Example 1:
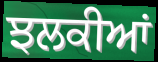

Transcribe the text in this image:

ਝਲਕੀਆਂ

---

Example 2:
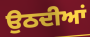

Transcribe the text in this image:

ਉਠਦੀਆਂ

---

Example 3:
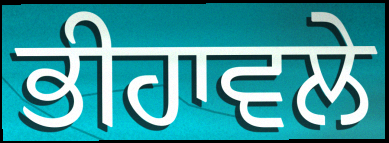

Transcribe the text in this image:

ਭੀਹਾਵਲੇ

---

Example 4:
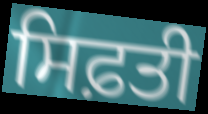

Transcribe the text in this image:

ਸਿਫ਼ਤੀ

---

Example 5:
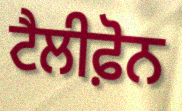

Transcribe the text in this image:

ਟੈਲੀਫ਼ੋਨ